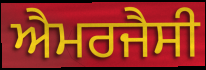
ਐਮਰਜੈਸੀ